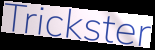
Trickster